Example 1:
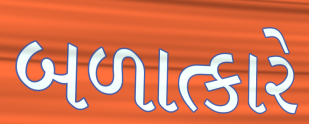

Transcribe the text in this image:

બળાત્કારે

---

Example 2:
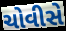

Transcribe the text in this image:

ચોવીસે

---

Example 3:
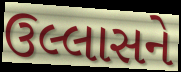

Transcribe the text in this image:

ઉલ્લાસને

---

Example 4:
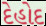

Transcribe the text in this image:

દેહોદ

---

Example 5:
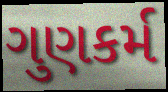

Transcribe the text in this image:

ગુણકર્મ